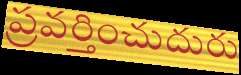
ప్రవర్తించుదురు